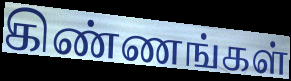
கிண்ணங்கள்